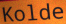
Kolde